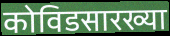
कोविडसारख्या